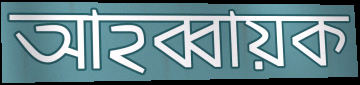
আহব্বায়ক